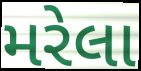
મરેલા